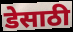
डेसाठी